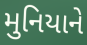
મુનિયાને